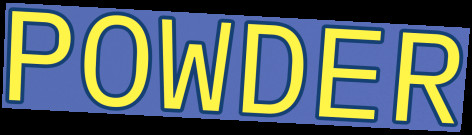
POWDER